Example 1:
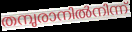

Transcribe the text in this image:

തമ്പുരാനിൽനിന്ന്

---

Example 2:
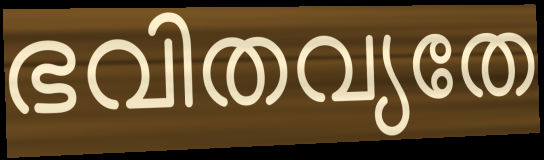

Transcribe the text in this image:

ഭവിതവ്യതേ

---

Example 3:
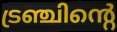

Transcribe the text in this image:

ട്രഞ്ചിന്റെ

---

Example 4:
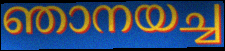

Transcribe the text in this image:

ഞാനയച്ച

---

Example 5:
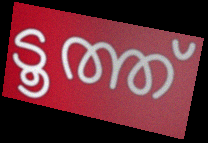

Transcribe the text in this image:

ടൂത്ത്